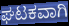
ಘಟಕವಾಗಿ